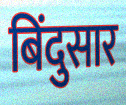
बिंदुसार